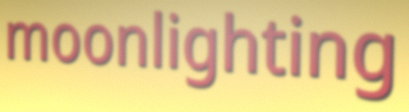
moonlighting